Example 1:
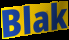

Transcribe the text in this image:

Blak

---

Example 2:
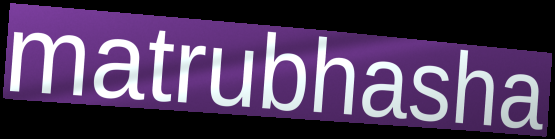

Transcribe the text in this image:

matrubhasha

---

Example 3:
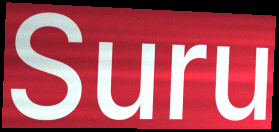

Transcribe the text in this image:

Suru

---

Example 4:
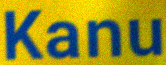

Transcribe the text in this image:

Kanu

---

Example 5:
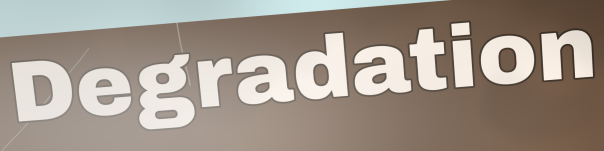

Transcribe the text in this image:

Degradation